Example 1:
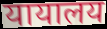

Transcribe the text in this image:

यायालय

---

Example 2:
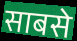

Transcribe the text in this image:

साबसे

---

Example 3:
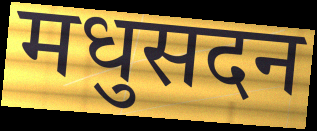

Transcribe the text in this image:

मधुसदन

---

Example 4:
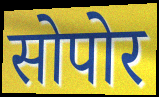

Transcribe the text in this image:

सोपोर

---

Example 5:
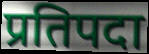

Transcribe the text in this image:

प्रतिपदा